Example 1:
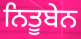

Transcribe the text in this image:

ਨਿਤੂਬੇਨ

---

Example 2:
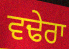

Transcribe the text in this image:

ਵਢੇਰਾ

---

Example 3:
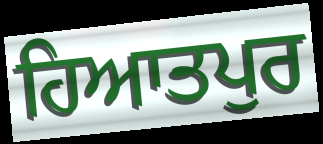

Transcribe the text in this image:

ਹਿਆਤਪੁਰ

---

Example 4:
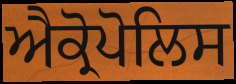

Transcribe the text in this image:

ਐਕ੍ਰੋਪੋਲਿਸ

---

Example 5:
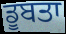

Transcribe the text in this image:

ਡੂਬਤਾ